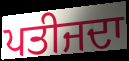
ਪਤੀਜਦਾ